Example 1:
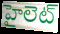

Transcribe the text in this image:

హైలెట్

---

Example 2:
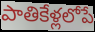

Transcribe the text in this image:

పాతికేళ్లలోపే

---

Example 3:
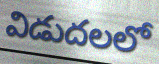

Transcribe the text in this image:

విడుదలలో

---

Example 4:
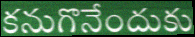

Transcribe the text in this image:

కనుగొనేందుకు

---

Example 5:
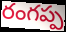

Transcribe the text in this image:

రంగప్ప